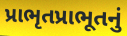
પ્રાભૃતપ્રાભૂતનું